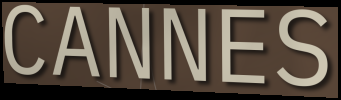
CANNES